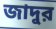
জাদুর